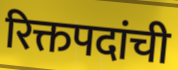
रिक्तपदांची